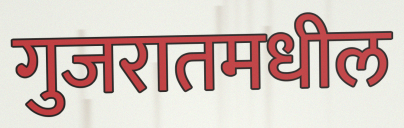
गुजरातमधील